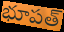
భూపత్